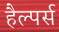
हैल्पर्स